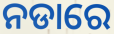
ନଡାରେ